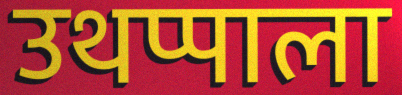
उथप्पाला